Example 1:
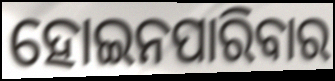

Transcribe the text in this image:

ହୋଇନପାରିବାର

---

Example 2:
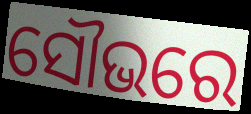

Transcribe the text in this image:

ସୌଭରେ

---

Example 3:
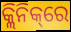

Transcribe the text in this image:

କ୍ଲିନିକ୍‌ରେ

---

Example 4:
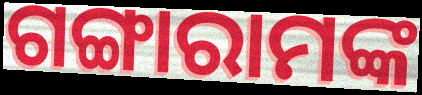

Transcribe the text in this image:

ଗଙ୍ଗାରାମଙ୍କ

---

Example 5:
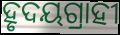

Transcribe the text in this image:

ହୃଦୟଗ୍ରାହୀ